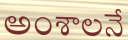
అంశాలనే